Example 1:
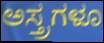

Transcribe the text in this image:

ಅಸ್ತ್ರಗಳೂ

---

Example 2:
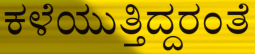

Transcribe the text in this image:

ಕಳೆಯುತ್ತಿದ್ದರಂತೆ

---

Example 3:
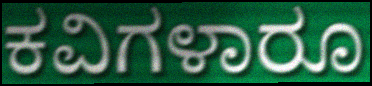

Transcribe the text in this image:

ಕವಿಗಳಾರೂ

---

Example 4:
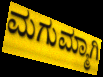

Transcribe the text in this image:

ಮಗುಮ್ಮಾಗಿ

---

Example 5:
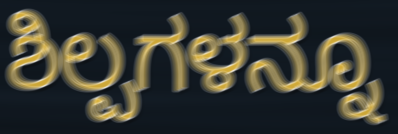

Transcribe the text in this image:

ಶಿಲ್ಪಗಳನ್ನೂ